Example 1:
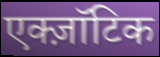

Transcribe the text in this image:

एक्ज़ॉटिक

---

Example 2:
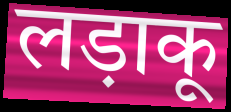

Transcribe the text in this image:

लड़ाकू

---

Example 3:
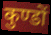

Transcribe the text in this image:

कुण्डों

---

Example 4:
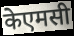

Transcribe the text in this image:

केएमसी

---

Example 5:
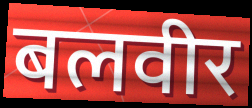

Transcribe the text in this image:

बलवीर